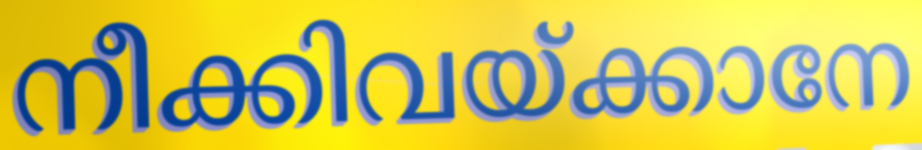
നീക്കിവയ്ക്കാനേ